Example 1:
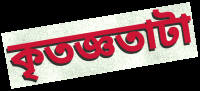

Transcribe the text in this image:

কৃতজ্ঞতাটা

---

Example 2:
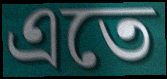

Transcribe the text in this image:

এতে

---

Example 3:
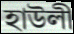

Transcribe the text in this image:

হাউলী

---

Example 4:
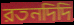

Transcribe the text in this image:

রতনদিদি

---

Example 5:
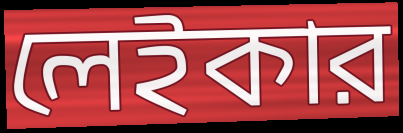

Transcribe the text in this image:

লেইকার